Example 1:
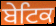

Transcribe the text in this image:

ਬੇਟਿਕ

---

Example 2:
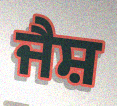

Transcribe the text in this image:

ਜੈਸ਼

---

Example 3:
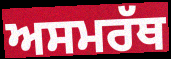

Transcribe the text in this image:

ਅਸਮਰੱਥ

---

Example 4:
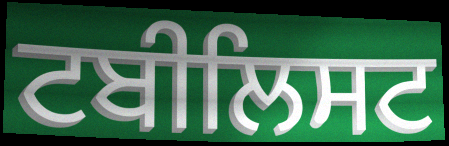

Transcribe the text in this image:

ਟਬੀਲਿਸਟ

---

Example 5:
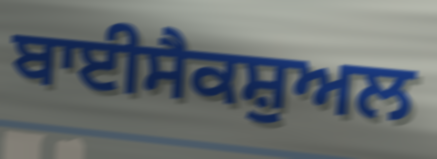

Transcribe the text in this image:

ਬਾਈਸੈਕਸ਼ੁਅਲ